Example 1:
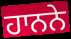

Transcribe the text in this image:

ਹਾਨਨੇ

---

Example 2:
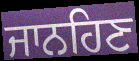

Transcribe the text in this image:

ਜਾਨਹਿਣ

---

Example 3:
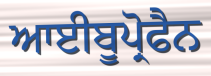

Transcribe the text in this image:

ਆਈਬੂਪ੍ਰੋਫੈਨ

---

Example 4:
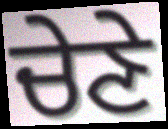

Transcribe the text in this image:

ਚੇਣੇ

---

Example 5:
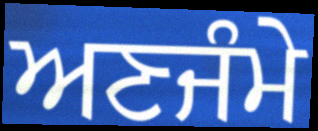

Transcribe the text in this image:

ਅਣਜੰਮੇ